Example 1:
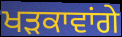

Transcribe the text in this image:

ਖੜਕਾਵਾਂਗੇ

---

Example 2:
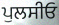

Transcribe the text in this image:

ਪੁਲਸੀਓ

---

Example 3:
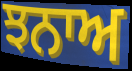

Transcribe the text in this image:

ਝਨਾਅ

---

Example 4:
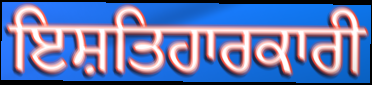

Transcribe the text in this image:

ਇਸ਼ਤਿਹਾਰਕਾਰੀ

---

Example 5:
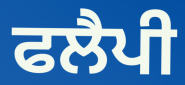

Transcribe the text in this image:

ਫਲੈਪੀ